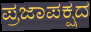
ಪ್ರಜಾಪಕ್ಷದ